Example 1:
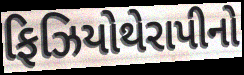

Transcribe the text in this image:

ફિઝિયોથેરાપીનો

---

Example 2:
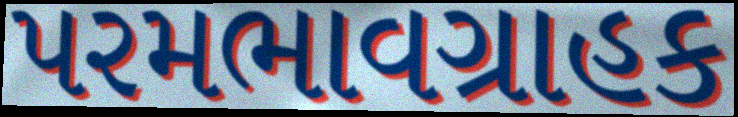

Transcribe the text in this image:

પરમભાવગ્રાહક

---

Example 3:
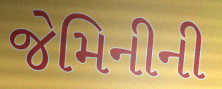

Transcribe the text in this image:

જેમિનીની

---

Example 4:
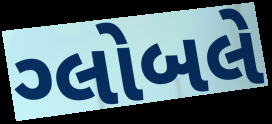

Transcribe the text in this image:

ગ્લોબલે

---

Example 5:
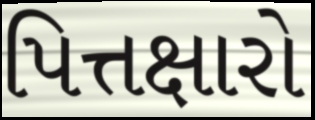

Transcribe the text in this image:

પિત્તક્ષારો